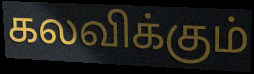
கலவிக்கும்